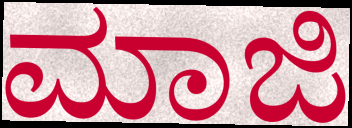
ಮಾಜಿ